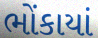
ભોંકાયાં